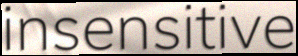
insensitive